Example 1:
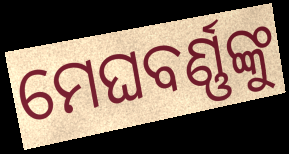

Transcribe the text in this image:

ମେଘବର୍ଣ୍ଣଙ୍କୁ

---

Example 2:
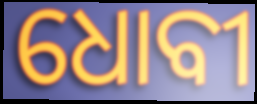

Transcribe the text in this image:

ଧୋବୀ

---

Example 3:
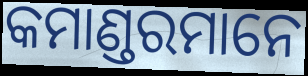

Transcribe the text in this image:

କମାଣ୍ଡରମାନେ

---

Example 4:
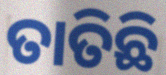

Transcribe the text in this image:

ତାତିଛି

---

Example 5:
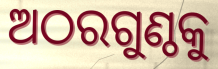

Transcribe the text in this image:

ଅଠରଗୁଣ୍ଠକୁ